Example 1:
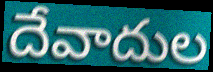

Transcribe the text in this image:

దేవాదుల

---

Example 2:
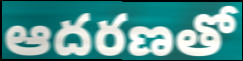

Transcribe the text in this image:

ఆదరణతో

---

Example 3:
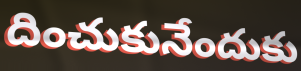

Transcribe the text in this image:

దించుకునేందుకు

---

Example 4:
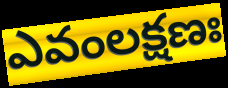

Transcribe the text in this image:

ఎవంలక్షణః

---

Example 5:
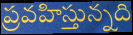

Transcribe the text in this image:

ప్రవహిస్తున్నది